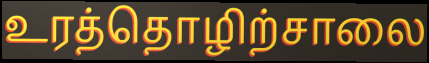
உரத்தொழிற்சாலை